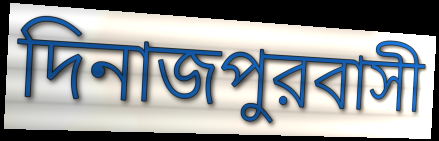
দিনাজপুরবাসী